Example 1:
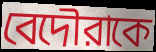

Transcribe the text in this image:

বেদৌরাকে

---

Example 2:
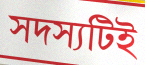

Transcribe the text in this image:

সদস্যটিই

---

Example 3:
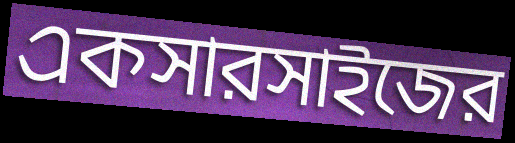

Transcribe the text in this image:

একসারসাইজের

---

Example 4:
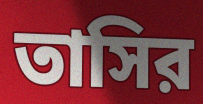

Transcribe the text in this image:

তাসির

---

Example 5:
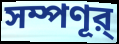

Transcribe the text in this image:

সম্পণূর্